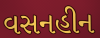
વસનહીન